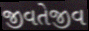
જીવતેજીવ